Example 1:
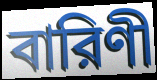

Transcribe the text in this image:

বারিণী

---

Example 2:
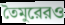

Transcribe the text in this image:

তৈমুরেরও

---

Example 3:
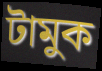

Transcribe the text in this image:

টামুক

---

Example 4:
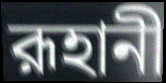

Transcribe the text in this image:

রূহানী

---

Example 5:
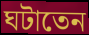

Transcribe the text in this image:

ঘটাতেন